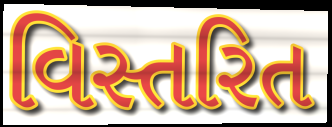
વિસ્તરિત